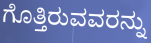
ಗೊತ್ತಿರುವವರನ್ನು